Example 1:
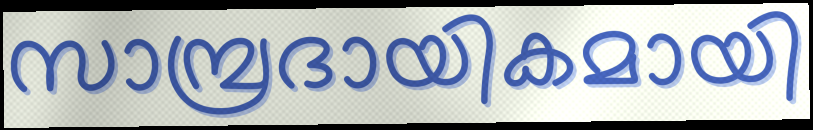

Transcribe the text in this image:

സാമ്പ്രദായികമായി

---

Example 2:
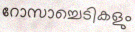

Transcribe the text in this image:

റോസാച്ചെടികളും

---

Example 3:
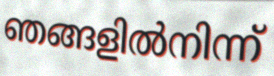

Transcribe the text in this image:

ഞങ്ങളിൽനിന്ന്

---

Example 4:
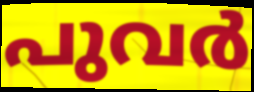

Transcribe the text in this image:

പുവർ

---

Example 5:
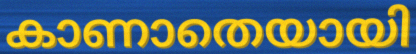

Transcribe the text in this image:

കാണാതെയായി